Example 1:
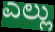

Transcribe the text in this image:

ಎಲ್ಲು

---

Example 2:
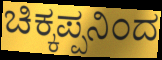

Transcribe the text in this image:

ಚಿಕ್ಕಪ್ಪನಿಂದ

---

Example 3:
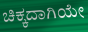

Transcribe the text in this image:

ಚಿಕ್ಕದಾಗಿಯೇ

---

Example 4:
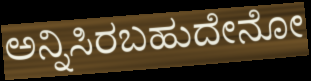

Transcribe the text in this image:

ಅನ್ನಿಸಿರಬಹುದೇನೋ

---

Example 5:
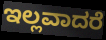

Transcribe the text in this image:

ಇಲ್ಲವಾದರೆ